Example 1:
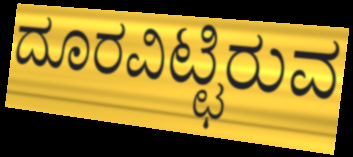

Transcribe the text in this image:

ದೂರವಿಟ್ಟಿರುವ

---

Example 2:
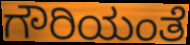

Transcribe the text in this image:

ಗೌರಿಯಂತೆ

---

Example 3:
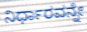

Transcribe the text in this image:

ನಿರ್ಧಾರವನ್ನೇ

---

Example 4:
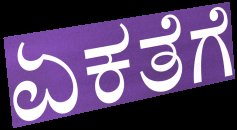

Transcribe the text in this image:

ಏಕತೆಗೆ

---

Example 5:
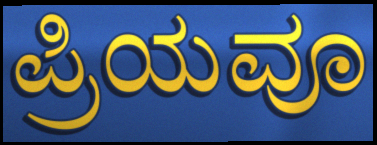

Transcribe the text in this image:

ಪ್ರಿಯವೂ